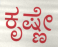
ಕೃಷ್ಣೇ